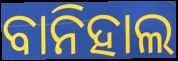
ବାନିହାଲ